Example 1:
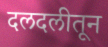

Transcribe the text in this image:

दलदलीतून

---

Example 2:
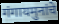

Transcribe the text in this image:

गंगायमुनांचे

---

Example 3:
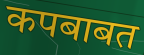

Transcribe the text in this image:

कपबाबत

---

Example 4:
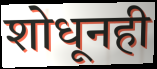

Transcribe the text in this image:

शोधूनही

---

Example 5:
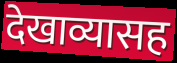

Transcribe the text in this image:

देखाव्यासह